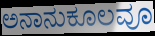
ಅನಾನುಕೂಲವೂ